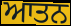
ਆਤਨ